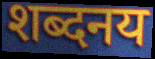
शब्दनय